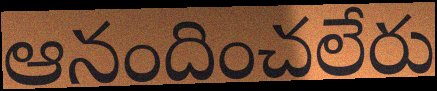
ఆనందించలేరు